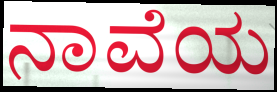
ನಾವೆಯ